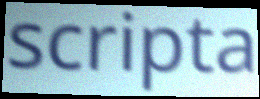
scripta